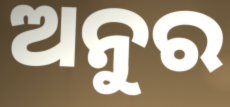
ଅନୁର